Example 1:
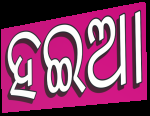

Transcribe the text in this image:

ହଇଆ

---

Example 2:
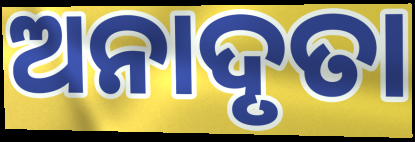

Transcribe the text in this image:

ଅନାଦୃତା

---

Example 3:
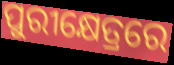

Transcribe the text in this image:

ପୁରୀକ୍ଷେତ୍ରରେ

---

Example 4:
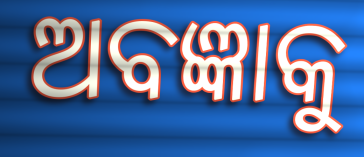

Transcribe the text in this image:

ଅବଜ୍ଞାକୁ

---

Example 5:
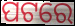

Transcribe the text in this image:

ପଟରେ